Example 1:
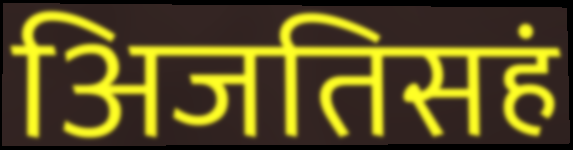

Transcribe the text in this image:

अिजतिसहं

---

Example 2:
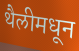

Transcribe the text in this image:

थैलीमधून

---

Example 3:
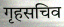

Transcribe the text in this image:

गृहसचिव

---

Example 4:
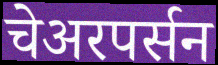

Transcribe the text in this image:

चेअरपर्सन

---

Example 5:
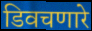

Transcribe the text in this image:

डिवचणारे